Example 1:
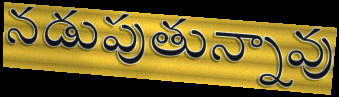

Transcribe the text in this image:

నడుపుతున్నావు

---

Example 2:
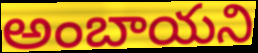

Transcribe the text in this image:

అంబాయని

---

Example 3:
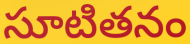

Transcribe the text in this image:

సూటితనం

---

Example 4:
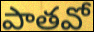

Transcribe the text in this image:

పాతవో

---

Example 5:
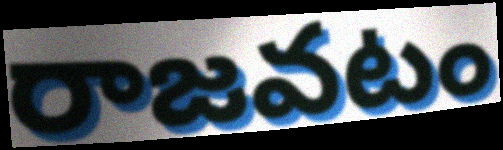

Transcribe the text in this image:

రాజవటం